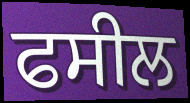
ਫਸੀਲ